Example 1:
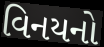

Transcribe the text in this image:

વિનયનો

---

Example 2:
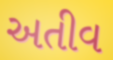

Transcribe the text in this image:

અતીવ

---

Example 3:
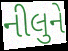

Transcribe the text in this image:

નીલુને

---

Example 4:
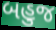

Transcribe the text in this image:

બહુજ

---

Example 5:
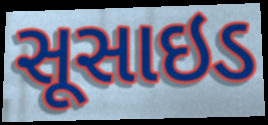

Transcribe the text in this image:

સૂસાઇડ